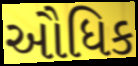
ઔધિક